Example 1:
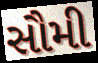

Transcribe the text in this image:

સૌમી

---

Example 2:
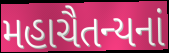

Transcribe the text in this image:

મહાચૈતન્યનાં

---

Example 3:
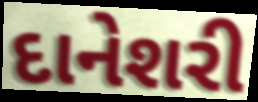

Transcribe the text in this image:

દાનેશરી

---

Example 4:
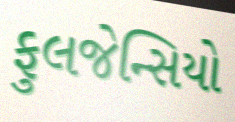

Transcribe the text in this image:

ફુલજેન્સિયો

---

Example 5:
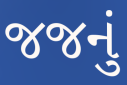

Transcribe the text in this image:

જજનું